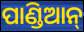
ପାଣ୍ଡିଆନ୍